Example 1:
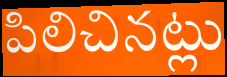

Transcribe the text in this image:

పిలిచినట్లు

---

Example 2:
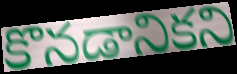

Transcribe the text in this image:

కొనడానికని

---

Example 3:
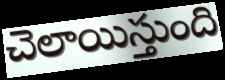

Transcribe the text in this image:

చెలాయిస్తుంది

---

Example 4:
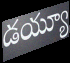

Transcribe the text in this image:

డయ్యూ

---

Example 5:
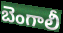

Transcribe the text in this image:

బెంగాలీ